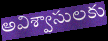
అవిశ్వాసులకు